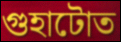
গুহাটোত